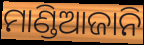
ମାଣ୍ଡିଆଜାନି